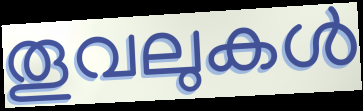
തൂവലുകൾ